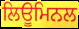
ਲਿਊਮਿਨਲ